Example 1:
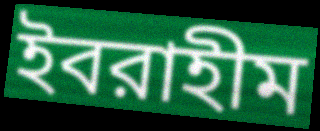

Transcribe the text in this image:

ইবরাহীম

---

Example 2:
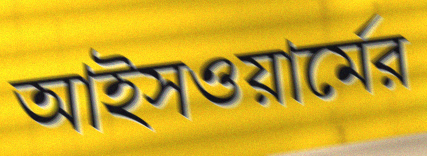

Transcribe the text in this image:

আইসওয়ার্মের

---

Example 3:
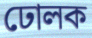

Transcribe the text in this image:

ঢোলক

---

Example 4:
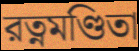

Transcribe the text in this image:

রত্নমণ্ডিতা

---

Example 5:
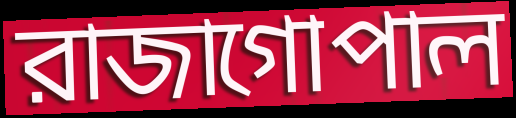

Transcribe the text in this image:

রাজাগোপাল